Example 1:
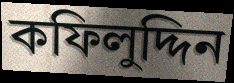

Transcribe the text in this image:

কফিলুদ্দিন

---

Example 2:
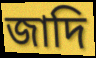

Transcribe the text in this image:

জাদি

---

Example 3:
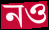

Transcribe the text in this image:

নও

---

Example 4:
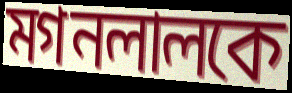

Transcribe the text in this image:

মগনলালকে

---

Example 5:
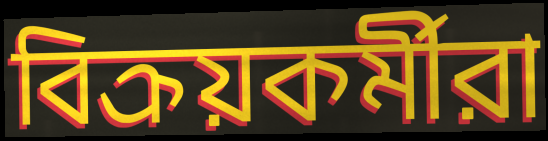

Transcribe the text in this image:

বিক্রয়কর্মীরা